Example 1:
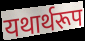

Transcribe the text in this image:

यथार्थरूप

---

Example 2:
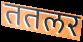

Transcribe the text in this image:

ततलर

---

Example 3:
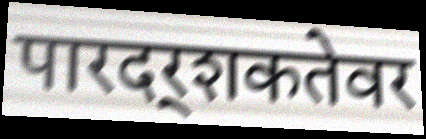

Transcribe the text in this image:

पारदर्शकतेवर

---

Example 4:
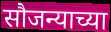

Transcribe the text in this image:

सौजन्याच्या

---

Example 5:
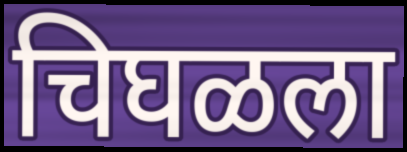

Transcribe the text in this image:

चिघळला